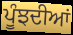
ਪੂੰਝਦੀਆਂ